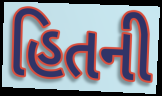
હિતની